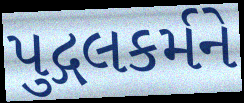
પુદ્ગલકર્મને